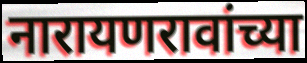
नारायणरावांच्या